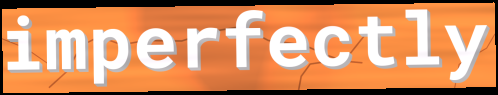
imperfectly